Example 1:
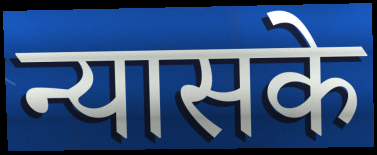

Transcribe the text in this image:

न्यासके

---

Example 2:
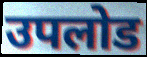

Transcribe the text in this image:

उपलोड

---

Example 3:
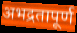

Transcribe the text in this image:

अभद्रतापूर्ण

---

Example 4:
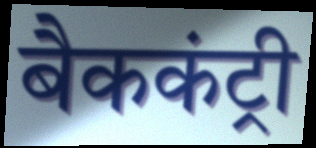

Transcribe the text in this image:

बैककंट्री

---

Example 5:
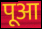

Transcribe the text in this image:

पूआ